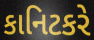
કાનિટકરે